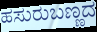
ಹಸುರುಬಣ್ಣದ